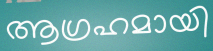
ആഗ്രഹമായി